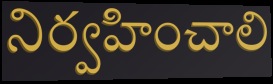
నిర్వహించాలి